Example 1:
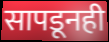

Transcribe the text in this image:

सापडूनही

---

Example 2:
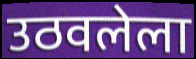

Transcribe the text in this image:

उठवलेला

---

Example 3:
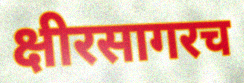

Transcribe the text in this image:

क्षीरसागरच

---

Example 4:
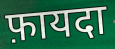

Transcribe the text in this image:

फ़ायदा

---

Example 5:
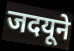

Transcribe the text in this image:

जदयूने